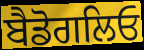
ਬੈਡੋਗਲਿਓ